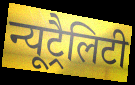
न्यूट्रैलिटी